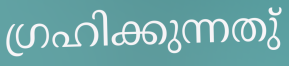
ഗ്രഹിക്കുന്നതു്